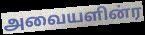
அவையளின்ர